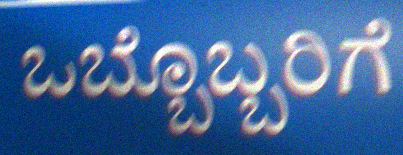
ಒಬ್ಬೊಬ್ಬರಿಗೆ